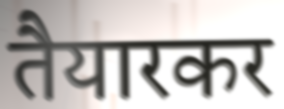
तैयारकर